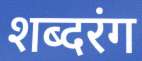
शब्दरंग